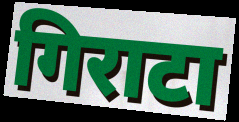
गिराटा